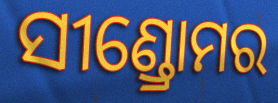
ସୀଣ୍ଡ୍ରୋମର